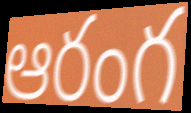
ఆరంగ